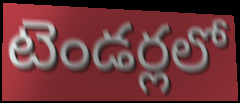
టెండర్లలో